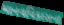
માનવવિકાસના